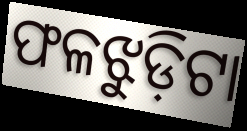
ଫଳଝୁଡ଼ିଟା